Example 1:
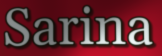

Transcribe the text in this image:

Sarina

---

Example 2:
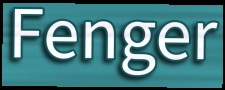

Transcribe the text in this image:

Fenger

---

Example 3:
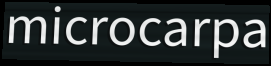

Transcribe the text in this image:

microcarpa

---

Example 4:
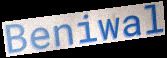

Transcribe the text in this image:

Beniwal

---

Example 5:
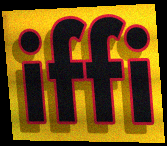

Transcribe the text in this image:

iffi